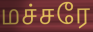
மச்சரே